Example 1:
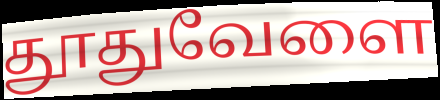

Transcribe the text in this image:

தூதுவேளை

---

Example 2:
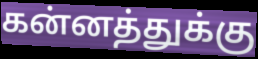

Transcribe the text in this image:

கன்னத்துக்கு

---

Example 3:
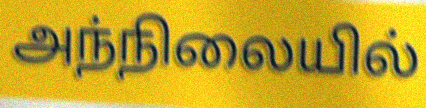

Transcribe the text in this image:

அந்நிலையில்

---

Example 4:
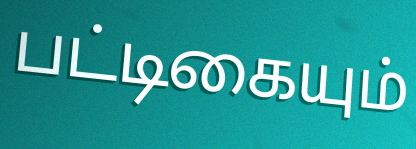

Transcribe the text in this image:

பட்டிகையும்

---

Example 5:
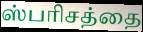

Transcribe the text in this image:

ஸ்பரிசத்தை